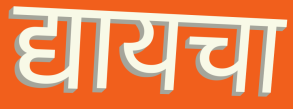
द्यायचा